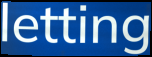
letting